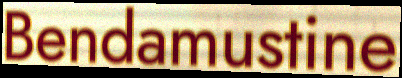
Bendamustine